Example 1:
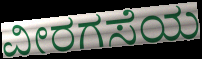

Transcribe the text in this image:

ವೀರಗಸೆಯ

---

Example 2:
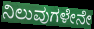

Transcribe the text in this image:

ನಿಲುವುಗಳೇನೇ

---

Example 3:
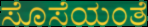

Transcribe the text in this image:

ಸೊಸೆಯಂತೆ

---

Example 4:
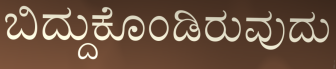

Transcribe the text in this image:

ಬಿದ್ದುಕೊಂಡಿರುವುದು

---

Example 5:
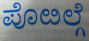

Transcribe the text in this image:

ಪೊೞಲ್ಗೆ